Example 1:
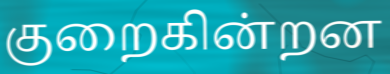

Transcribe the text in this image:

குறைகின்றன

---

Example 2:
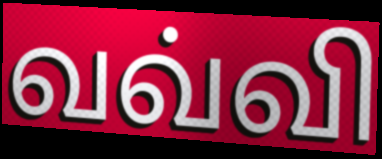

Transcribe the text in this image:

வவ்வி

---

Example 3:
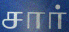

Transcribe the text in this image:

சார்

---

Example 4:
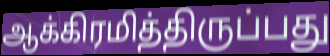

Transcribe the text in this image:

ஆக்கிரமித்திருப்பது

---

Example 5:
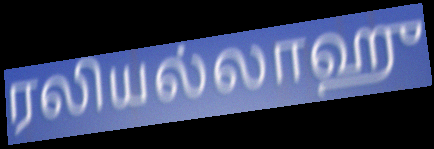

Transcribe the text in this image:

ரலியல்லாஹு